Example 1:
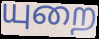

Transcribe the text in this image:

யுறை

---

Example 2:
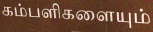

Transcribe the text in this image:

கம்பளிகளையும்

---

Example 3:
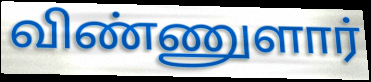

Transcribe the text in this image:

விண்ணுளார்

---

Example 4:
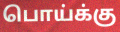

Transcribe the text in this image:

பொய்க்கு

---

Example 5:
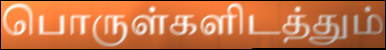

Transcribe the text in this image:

பொருள்களிடத்தும்